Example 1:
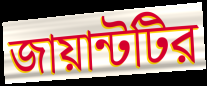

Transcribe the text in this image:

জায়ান্টটির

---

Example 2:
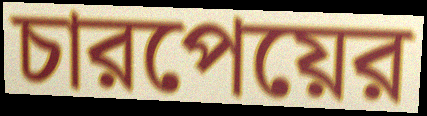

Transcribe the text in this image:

চারপেয়ের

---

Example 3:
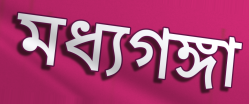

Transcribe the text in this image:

মধ্যগঙ্গা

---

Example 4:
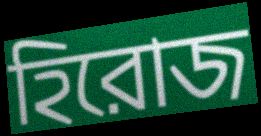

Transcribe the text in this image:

হিরোজ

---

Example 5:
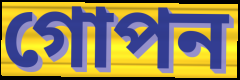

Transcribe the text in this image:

গোপন